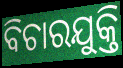
ବିଚାରଯୁକ୍ତି